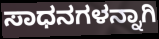
ಸಾಧನಗಳನ್ನಾಗಿ